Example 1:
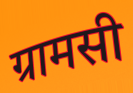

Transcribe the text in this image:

ग्रामसी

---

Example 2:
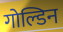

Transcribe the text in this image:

गोल्डिन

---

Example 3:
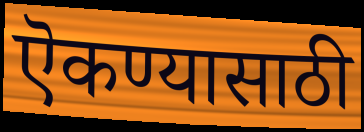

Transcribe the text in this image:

ऎकण्यासाठी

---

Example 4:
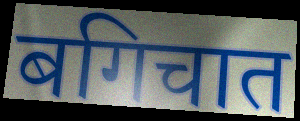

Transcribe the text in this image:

बगिचात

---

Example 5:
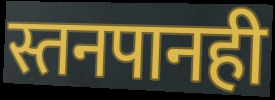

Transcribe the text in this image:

स्तनपानही